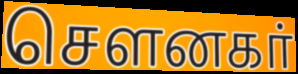
சௌனகர்